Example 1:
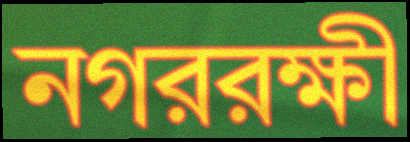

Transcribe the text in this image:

নগররক্ষী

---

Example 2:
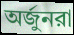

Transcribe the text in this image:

অর্জুনরা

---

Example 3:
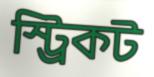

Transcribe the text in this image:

স্ট্রিকট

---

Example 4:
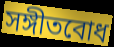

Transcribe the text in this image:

সঙ্গীতবোধ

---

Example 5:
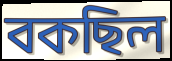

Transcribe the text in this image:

বকছিল